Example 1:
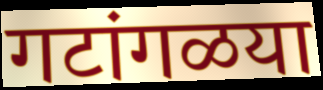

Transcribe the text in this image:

गटांगळया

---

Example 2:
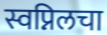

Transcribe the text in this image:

स्वप्निलचा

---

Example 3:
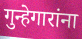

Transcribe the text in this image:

गुन्हेगारांना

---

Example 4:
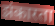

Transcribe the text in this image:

झंकारता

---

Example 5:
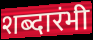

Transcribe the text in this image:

शब्दारंभी